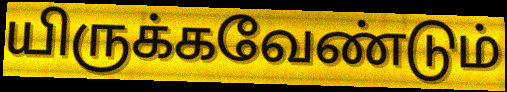
யிருக்கவேண்டும்